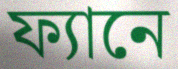
ফ্যানে